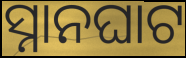
ସ୍ନାନଘାଟ